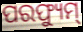
ପରଫ୍ୟୁମ୍